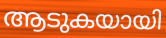
ആടുകയായി